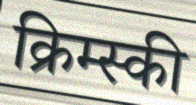
क्रिम्स्की